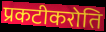
प्रकटीकरोति